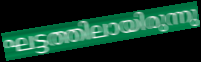
ഘട്ടത്തിലായിരുന്നു